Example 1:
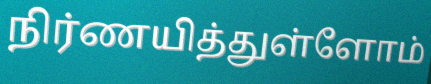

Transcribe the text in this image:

நிர்ணயித்துள்ளோம்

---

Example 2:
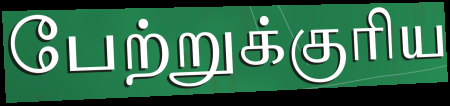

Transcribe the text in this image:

பேற்றுக்குரிய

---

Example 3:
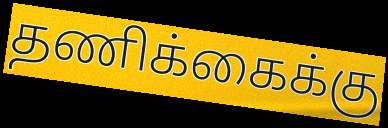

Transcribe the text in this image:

தணிக்கைக்கு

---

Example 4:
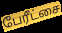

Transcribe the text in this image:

பேரீட்சை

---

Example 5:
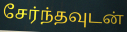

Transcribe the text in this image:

சேர்ந்தவுடன்